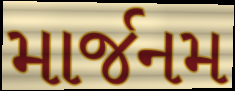
માર્જનમ